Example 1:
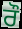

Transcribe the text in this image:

ਰੌ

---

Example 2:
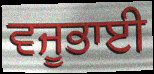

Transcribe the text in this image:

ਵਜੂਭਾਈ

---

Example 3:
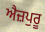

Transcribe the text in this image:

ਐਜ਼ਪੁਰੂ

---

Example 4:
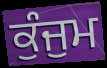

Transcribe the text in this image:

ਕੁੰਜੁਮ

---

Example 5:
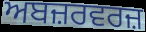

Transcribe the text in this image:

ਅਬਜ਼ਰਵਰਜ਼